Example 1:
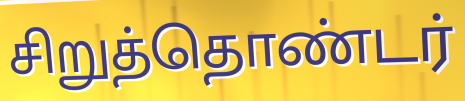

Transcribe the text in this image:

சிறுத்தொண்டர்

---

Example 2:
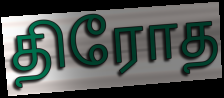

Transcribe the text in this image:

திரோத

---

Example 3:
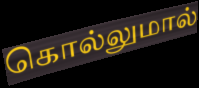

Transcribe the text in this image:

கொல்லுமால்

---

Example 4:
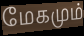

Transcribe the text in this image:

மேகமும்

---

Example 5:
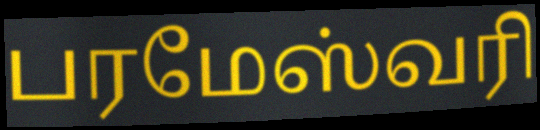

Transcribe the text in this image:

பரமேஸ்வரி